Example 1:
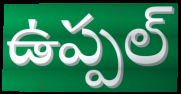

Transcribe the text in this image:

ఉప్పల్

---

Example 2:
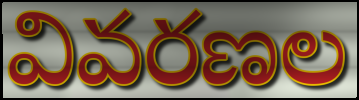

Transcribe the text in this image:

వివరణల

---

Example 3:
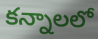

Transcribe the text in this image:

కన్నాలలో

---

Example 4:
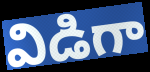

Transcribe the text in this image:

విడిగా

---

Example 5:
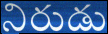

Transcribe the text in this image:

నిరుడు